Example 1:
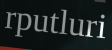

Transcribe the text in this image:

rputluri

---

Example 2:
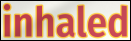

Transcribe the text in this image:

inhaled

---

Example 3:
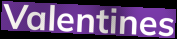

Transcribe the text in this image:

Valentines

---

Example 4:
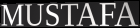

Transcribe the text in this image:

MUSTAFA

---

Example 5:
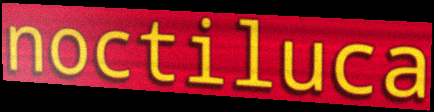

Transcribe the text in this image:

noctiluca